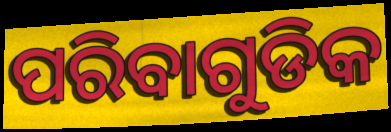
ପରିବାଗୁଡିକ